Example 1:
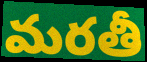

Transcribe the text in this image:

మరతీ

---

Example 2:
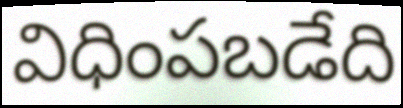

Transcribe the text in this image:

విధింపబడేది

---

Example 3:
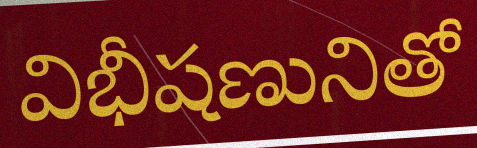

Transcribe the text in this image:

విభీషణునితో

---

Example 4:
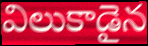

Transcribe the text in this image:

విలుకాడైన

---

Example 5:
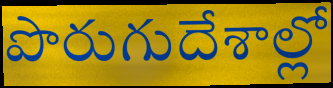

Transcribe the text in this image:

పొరుగుదేశాల్లో